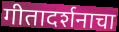
गीतादर्शनाचा